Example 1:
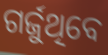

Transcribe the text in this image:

ଗର୍ଜୁଥିବେ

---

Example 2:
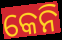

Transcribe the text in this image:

କେନି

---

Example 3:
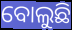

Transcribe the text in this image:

ବୋଲୁଛି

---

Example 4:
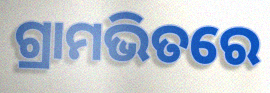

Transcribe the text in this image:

ଗ୍ରାମଭିତରେ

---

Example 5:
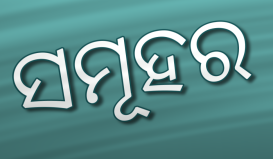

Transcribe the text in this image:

ସମୂହର